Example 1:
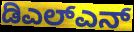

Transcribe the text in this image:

ಡಿಎಲ್ಎನ್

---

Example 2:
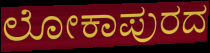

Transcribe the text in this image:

ಲೋಕಾಪುರದ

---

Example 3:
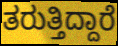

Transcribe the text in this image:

ತರುತ್ತಿದ್ದಾರೆ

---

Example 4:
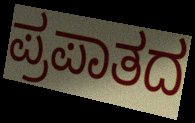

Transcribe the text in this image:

ಪ್ರಪಾತದ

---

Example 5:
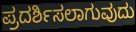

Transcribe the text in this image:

ಪ್ರದರ್ಶಿಸಲಾಗುವುದು